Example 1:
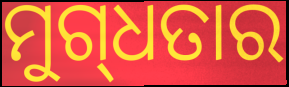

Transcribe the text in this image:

ମୁଗ୍‍ଧତାର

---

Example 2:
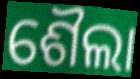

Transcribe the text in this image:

ଶୈଲା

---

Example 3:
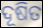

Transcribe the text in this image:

ଦୂଷିତ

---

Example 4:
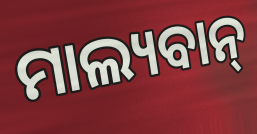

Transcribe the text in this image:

ମାଲ୍ୟବାନ୍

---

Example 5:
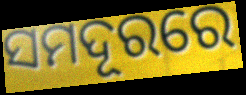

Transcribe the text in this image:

ସମଦୂରରେ